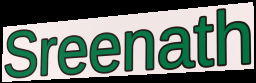
Sreenath